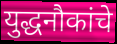
युद्धनौकांचे